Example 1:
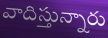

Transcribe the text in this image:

వాదిస్తున్నారు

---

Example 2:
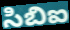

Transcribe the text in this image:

సిబిఐ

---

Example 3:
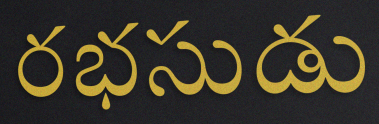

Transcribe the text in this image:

రభసుడు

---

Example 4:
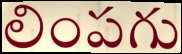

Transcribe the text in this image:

లింపగు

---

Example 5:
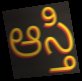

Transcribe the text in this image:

ఆస్తి